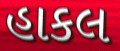
હાકલ